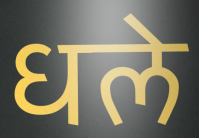
धले